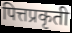
पित्तप्रकृती